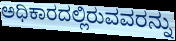
ಅಧಿಕಾರದಲ್ಲಿರುವವರನ್ನು